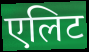
एलिट